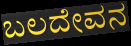
ಬಲದೇವನ